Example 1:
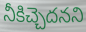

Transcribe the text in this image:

నీకిచ్చెదనని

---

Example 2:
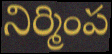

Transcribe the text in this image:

నిర్మింప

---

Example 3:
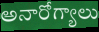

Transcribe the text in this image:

అనారోగ్యాలు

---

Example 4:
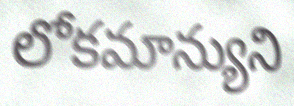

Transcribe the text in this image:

లోకమాన్యుని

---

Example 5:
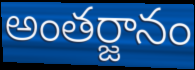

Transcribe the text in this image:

అంతర్జానం